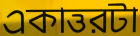
একাত্তরটা